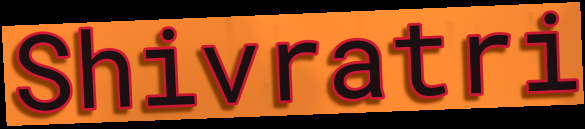
Shivratri